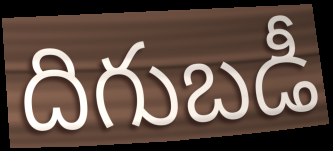
దిగుబడీ